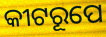
କୀଟରୂପେ